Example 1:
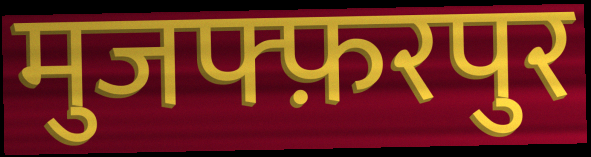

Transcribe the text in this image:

मुजफ्फ़रपुर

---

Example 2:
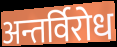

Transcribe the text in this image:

अन्तर्विरोध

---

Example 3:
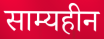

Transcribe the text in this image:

साम्यहीन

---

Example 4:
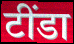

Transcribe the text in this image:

टींडा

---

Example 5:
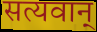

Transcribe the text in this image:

सत्यवान्